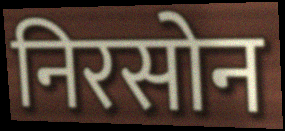
निरसोन